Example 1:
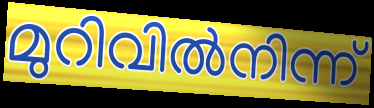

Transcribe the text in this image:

മുറിവിൽനിന്ന്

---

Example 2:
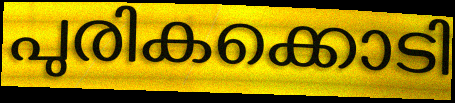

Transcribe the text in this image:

പുരികക്കൊടി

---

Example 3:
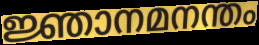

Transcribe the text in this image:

ജ്ഞാനമനന്തം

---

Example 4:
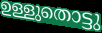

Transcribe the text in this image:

ഉള്ളുതൊട്ടു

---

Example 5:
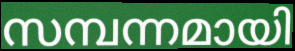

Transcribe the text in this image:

സമ്പന്നമായി